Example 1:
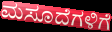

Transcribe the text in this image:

ಮಸೂದೆಗಳಿಗೆ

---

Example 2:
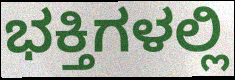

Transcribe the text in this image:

ಭಕ್ತಿಗಳಲ್ಲಿ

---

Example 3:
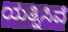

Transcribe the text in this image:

ಯತ್ನಿಸಿವೆ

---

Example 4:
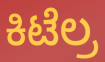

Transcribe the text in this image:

ಕಿಟೆಲ್ರ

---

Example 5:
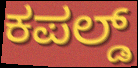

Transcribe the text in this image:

ಕಪಲ್ಡ್